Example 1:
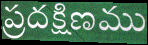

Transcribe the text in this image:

ప్రదక్షిణము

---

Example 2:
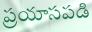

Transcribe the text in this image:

ప్రయాసపడి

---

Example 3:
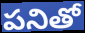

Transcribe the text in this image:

పనితో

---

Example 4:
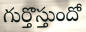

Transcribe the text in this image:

గుర్తొస్తుందో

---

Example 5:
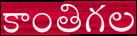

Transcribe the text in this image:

కాంతిగల